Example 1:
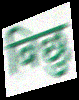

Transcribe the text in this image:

बिछु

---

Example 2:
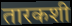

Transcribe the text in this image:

तारकशी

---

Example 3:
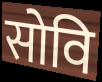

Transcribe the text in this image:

सोवि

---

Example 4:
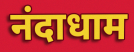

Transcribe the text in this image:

नंदाधाम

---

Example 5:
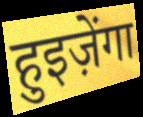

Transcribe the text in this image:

हुइज़ेंगा